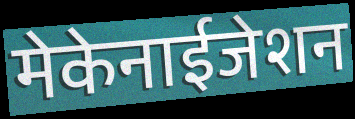
मेकेनाईजेशन